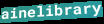
ainelibrary